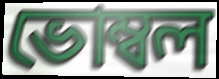
ভোম্বল